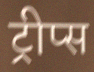
ट्रीप्स